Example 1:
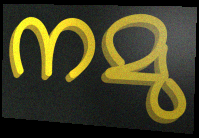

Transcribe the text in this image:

നമു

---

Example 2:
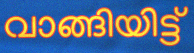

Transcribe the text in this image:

വാങ്ങിയിട്ട്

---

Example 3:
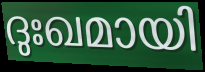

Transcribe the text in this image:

ദുഃഖമായി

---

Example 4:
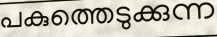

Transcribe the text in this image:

പകുത്തെടുക്കുന്ന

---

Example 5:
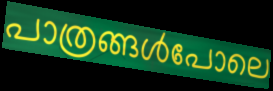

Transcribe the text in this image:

പാത്രങ്ങൾപോലെ